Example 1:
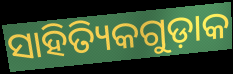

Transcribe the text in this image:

ସାହିତ୍ୟିକଗୁଡ଼ାକ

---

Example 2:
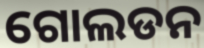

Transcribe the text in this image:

ଗୋଲଡନ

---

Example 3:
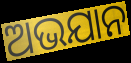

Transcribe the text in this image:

ଅଭଯାନ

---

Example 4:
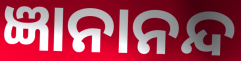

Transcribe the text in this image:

ଜ୍ଞାନାନନ୍ଦ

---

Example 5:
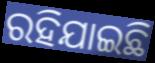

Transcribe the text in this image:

ରହିଯାଇଛି